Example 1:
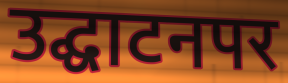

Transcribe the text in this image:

उद्घाटनपर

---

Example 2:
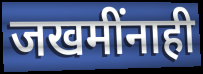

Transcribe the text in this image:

जखमींनाही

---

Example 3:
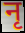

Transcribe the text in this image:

नृ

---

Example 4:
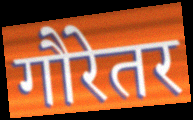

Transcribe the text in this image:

गौरेतर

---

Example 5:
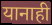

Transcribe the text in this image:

यानाही